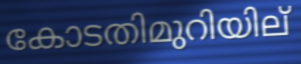
കോടതിമുറിയില്